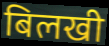
बिलखी